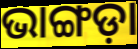
ଭାଙ୍ଗଡ଼ା